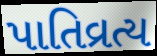
પાતિવ્રત્ય